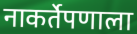
नाकर्तेपणाला